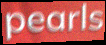
pearls